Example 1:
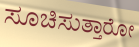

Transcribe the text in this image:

ಸೂಚಿಸುತ್ತಾರೋ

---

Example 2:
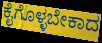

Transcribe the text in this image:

ಕೈಗೊಳ್ಳಬೇಕಾದ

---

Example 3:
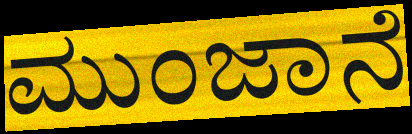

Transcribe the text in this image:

ಮುಂಜಾನೆ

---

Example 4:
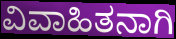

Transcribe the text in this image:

ವಿವಾಹಿತನಾಗಿ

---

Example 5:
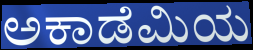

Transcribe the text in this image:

ಅಕಾಡೆಮಿಯ